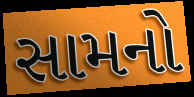
સામનો